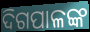
ଦିଗପାଳଙ୍କ